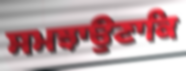
ਸਮਝਾਉਣਾਕਿ